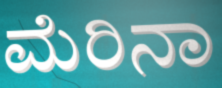
ಮೆರಿನಾ